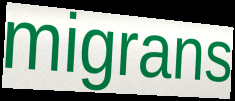
migrans